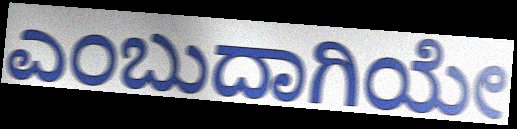
ಎಂಬುದಾಗಿಯೇ